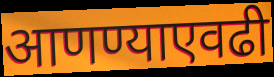
आणण्याएवढी